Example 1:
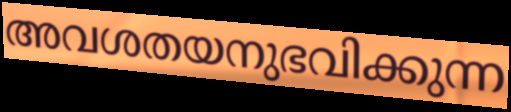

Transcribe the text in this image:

അവശതയനുഭവിക്കുന്ന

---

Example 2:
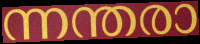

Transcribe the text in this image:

ന്നന്തരാ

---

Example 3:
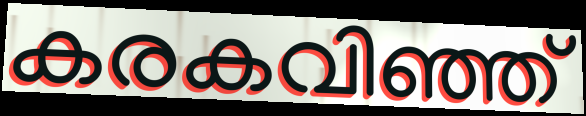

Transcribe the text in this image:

കരകവിഞ്ഞ്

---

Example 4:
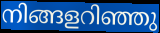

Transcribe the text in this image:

നിങ്ങളറിഞ്ഞു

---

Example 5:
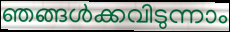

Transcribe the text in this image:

ഞങ്ങൾക്കവിടുന്നാം